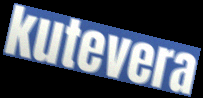
kutevera